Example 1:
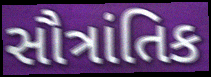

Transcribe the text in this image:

સૌત્રાંતિક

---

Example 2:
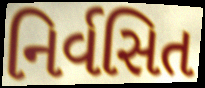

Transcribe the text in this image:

નિર્વસિત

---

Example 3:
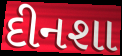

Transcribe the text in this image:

દીનશા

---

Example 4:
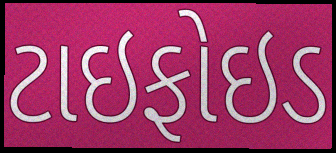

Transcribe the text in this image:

ટાઇફોઇડ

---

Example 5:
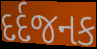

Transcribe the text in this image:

દર્દજનક